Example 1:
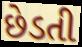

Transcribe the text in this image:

છેડતી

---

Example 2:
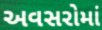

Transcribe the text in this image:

અવસરોમાં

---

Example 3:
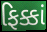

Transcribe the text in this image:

ફિક્કાં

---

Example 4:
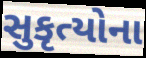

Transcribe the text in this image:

સુકૃત્યોના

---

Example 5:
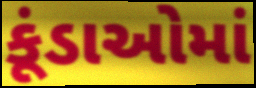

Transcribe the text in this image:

કૂંડાઓમાં